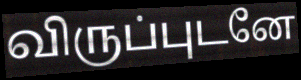
விருப்புடனே